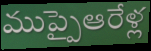
ముప్పైఆరేళ్ల